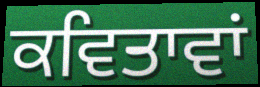
ਕਵਿਤਾਵਾਂ